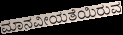
ಮಾನವೀಯತೆಯಿರುವ